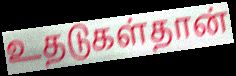
உதடுகள்தான்